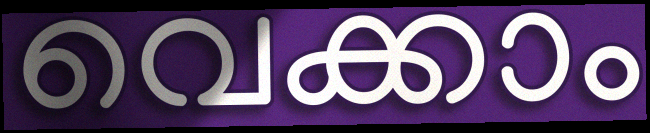
വെക്കാം